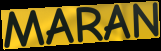
MARAN